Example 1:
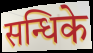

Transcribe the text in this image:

सन्धिके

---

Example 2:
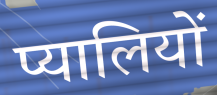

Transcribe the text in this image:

प्यालियों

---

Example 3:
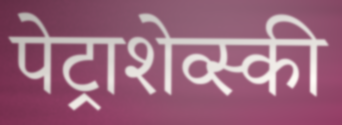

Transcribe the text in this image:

पेट्राशेव्स्की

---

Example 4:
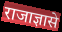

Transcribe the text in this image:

राजाज्ञासे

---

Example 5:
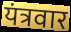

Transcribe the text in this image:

यंत्रवार